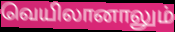
வெயிலானாலும்